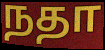
நதா